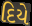
દિયે